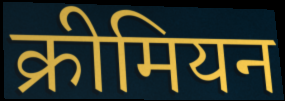
क्रीमियन